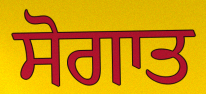
ਸੋਗਾਤ